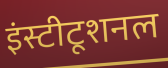
इंस्टीटूशनल